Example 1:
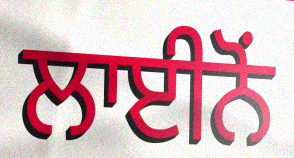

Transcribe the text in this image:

ਲਾਈਨੋਂ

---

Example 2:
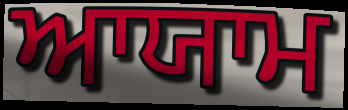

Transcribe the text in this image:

ਆਯਾਮ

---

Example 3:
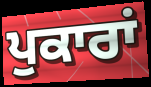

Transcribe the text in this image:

ਪੁਕਾਰਾਂ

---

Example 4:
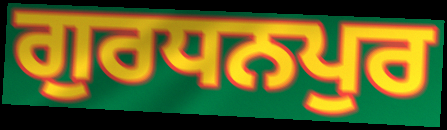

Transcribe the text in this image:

ਗੁਰਧਨਪੁਰ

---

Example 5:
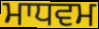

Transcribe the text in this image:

ਮਾਧਵਮ